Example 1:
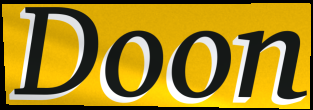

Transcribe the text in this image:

Doon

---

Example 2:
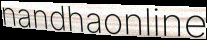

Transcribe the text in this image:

nandhaonline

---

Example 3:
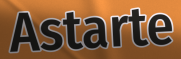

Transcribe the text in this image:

Astarte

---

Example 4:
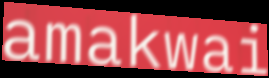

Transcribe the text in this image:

amakwai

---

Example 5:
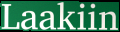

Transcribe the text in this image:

Laakiin